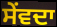
ਸੇਂਵਦਾ